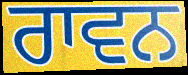
ਰਾਵਨ